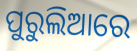
ପୁରୁଲିଆରେ